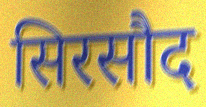
सिरसौद